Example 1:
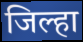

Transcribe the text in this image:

जिल्हा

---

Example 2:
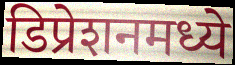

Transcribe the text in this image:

डिप्रेशनमध्ये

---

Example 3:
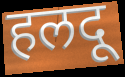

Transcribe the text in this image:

हलदू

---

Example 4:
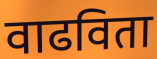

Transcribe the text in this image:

वाढविता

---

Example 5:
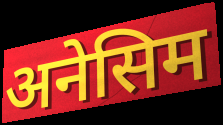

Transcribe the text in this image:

अनेसिम